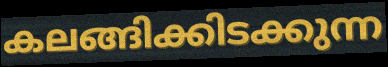
കലങ്ങിക്കിടക്കുന്ന